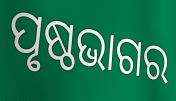
ପୃଷ୍ଠଭାଗର